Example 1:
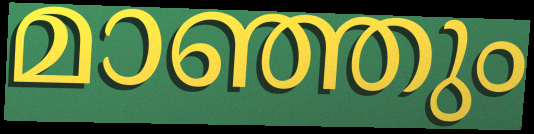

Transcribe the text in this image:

മാഞ്ഞും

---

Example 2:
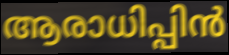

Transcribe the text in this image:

ആരാധിപ്പിൻ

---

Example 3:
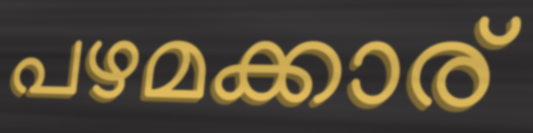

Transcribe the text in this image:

പഴമക്കാര്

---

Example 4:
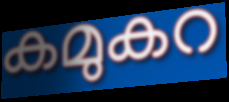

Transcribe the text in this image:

കമുകറ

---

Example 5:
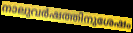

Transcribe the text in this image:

നാലുവർഷത്തിനുശേഷം